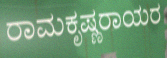
ರಾಮಕೃಷ್ಣರಾಯರ